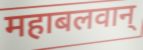
महाबलवान्